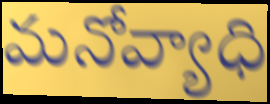
మనోవ్యాధి